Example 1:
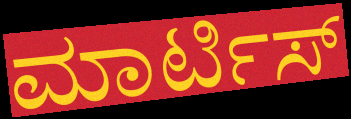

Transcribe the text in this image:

ಮಾರ್ಟಿಸ್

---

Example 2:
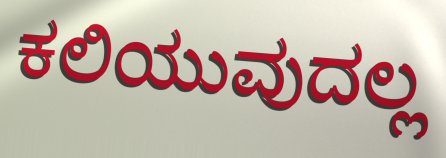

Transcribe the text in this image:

ಕಲಿಯುವುದಲ್ಲ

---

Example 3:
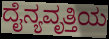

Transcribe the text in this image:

ದೈನ್ಯವೃತ್ತಿಯ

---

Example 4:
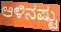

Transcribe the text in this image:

ಆಳಿನಷ್ಟು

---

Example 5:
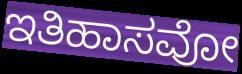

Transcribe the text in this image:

ಇತಿಹಾಸವೋ